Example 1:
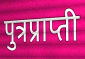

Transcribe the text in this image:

पुत्रप्राप्ती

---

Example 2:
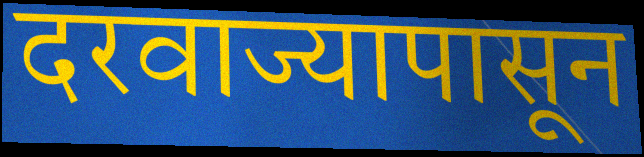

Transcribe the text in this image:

दरवाज्यापासून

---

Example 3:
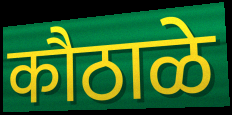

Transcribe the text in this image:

कौठाळे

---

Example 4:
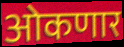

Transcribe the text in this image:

ओकणार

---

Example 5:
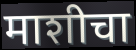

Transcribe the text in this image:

माशीचा